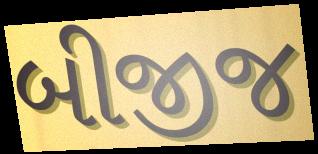
બીજીજ